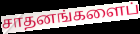
சாதனங்களைப்